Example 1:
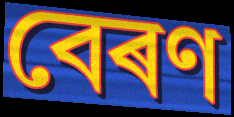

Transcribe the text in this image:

বেৰণ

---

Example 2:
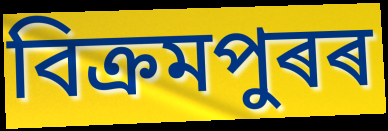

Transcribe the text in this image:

বিক্ৰমপুৰৰ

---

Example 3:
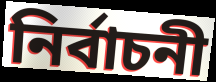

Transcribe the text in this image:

নিৰ্বাচনী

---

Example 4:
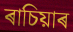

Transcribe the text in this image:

ৰাচিয়াৰ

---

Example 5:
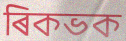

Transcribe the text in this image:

ৰিকভক